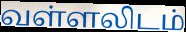
வள்ளலிடம்